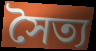
সৈত্য